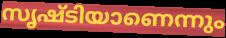
സൃഷ്ടിയാണെന്നും